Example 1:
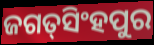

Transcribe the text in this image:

ଜଗତ୍‌ସିଂହପୁର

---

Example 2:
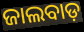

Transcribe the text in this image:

ଜାଲବାଡ଼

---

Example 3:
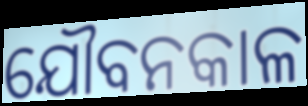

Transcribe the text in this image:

ଯୌବନକାଳ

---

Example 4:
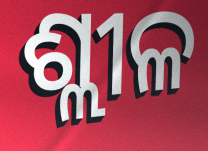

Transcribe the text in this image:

ଶ୍ଲୀଳ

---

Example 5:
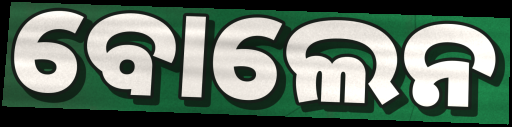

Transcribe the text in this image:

ବୋଲେନ